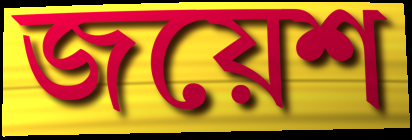
জয়েশ